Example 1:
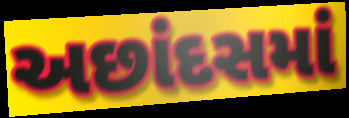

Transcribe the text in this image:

અછાંદસમાં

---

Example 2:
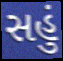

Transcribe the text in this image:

સહું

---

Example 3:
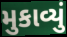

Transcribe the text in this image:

મુકાવ્યું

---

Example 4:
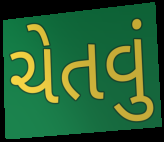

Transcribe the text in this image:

ચેતવું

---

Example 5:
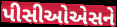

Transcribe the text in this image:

પીસીઓએસને